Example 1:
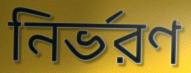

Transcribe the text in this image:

নির্ভরণ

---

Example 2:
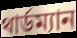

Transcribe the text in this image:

থার্ডম্যান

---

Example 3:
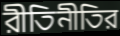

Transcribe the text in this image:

রীতিনীতির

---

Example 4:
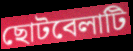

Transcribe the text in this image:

ছোটবেলাটি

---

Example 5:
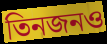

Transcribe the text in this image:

তিনজনও